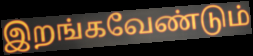
இறங்கவேண்டும்